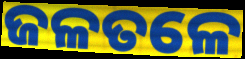
ଜଳତଳେ